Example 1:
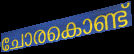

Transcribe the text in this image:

ചോരകൊണ്ട്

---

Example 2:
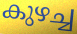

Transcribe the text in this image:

കുഴച്ച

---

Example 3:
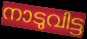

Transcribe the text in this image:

നാടുവിട്ട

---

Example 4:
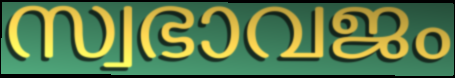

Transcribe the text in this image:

സ്വഭാവജം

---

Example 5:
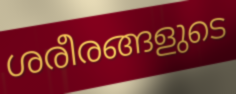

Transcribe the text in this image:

ശരീരങ്ങളുടെ